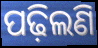
ପଢ଼ିଲଣି